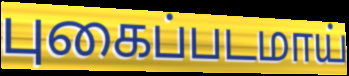
புகைப்படமாய்